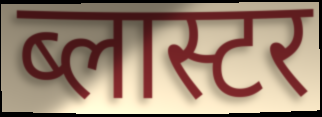
ब्लास्टर